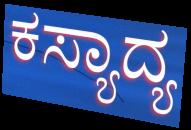
ಕಸ್ಯಾದ್ಯ